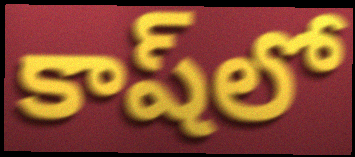
కాష్‌లో